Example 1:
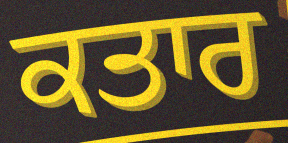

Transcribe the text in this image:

ਕਤਾਰ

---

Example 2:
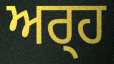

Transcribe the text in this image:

ਅਰ੍‍ਹ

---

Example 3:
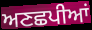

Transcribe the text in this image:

ਅਣਛਪੀਆਂ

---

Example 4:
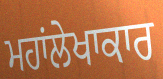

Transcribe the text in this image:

ਮਹਾਂਲੇਖਾਕਾਰ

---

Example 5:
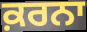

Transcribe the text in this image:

ਕ਼ਰਨਾ